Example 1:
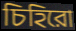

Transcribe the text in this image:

চিহিরো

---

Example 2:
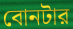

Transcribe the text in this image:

বোনটার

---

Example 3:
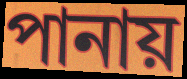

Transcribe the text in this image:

পানায়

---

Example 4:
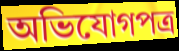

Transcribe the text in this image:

অভিযোগপত্র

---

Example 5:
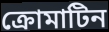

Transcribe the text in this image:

ক্রোমাটিন